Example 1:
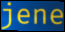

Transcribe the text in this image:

jene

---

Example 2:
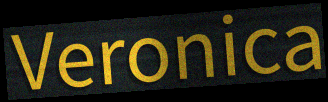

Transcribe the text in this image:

Veronica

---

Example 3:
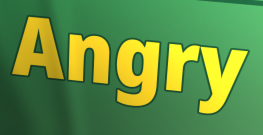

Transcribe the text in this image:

Angry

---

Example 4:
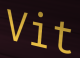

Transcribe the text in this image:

Vit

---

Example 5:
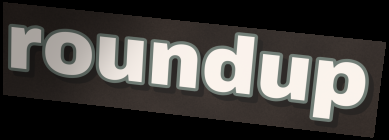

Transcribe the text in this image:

roundup